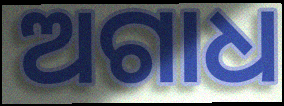
ଅଗାଧ